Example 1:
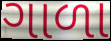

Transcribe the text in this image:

ગાળા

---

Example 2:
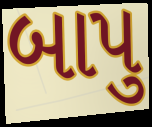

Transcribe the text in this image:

બાપુ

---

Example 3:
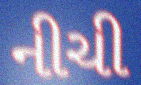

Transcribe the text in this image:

નીચી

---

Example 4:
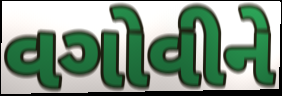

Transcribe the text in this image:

વગોવીને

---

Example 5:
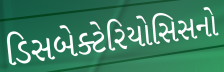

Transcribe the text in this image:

ડિસબેક્ટેરિયોસિસનો